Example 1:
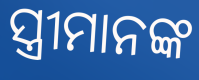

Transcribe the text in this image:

ସ୍ତ୍ରୀମାନଙ୍କ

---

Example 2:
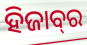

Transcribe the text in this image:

ହିଜାବ୍‌ର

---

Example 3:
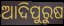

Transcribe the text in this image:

ଆଦିପୁରୁଷ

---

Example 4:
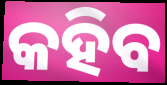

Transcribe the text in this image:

କହିବ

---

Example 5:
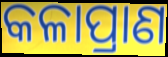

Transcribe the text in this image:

କଳାପ୍ରାଣ